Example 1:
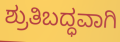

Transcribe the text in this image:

ಶ್ರುತಿಬದ್ಧವಾಗಿ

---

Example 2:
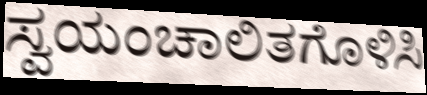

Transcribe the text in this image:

ಸ್ವಯಂಚಾಲಿತಗೊಳಿಸಿ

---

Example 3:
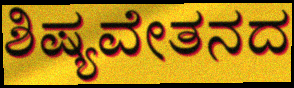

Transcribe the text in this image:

ಶಿಷ್ಯವೇತನದ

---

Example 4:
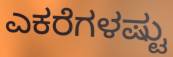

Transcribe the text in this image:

ಎಕರೆಗಳಷ್ಟು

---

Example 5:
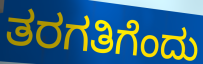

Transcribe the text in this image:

ತರಗತಿಗೆಂದು